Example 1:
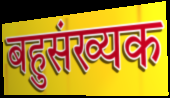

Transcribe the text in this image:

बहुसंख्यक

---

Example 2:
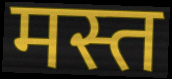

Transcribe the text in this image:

मस्‍त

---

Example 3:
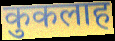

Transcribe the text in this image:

कुकलाह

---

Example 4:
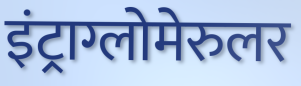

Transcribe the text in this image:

इंट्राग्लोमेरुलर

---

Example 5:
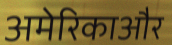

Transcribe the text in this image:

अमेरिकाऔर